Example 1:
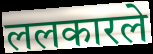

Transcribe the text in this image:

ललकारले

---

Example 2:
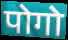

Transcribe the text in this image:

पोगो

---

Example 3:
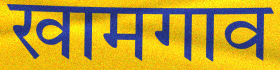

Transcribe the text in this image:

खामगाव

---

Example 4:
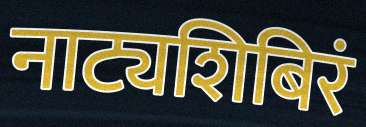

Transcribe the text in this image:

नाट्यशिबिरं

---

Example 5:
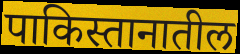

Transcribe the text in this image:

पाकिस्तानातील